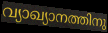
വ്യാഖ്യാനത്തിനു